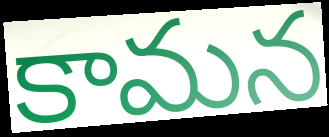
కామన